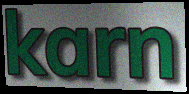
karn